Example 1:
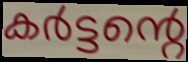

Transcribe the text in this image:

കർട്ടന്റെ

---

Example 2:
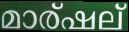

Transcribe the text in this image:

മാര്ഷല്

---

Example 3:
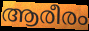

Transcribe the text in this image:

ആരീരം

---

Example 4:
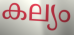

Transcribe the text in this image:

കല്യം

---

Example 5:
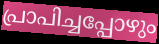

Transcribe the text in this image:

പ്രാപിച്ചപ്പോഴും